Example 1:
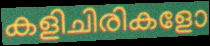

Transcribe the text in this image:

കളിചിരികളോ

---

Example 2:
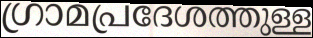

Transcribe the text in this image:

ഗ്രാമപ്രദേശത്തുള്ള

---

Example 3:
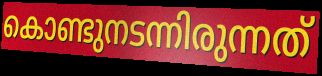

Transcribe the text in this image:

കൊണ്ടുനടന്നിരുന്നത്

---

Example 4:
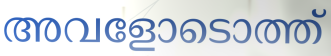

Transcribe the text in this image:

അവളോടൊത്ത്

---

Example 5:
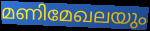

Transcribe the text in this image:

മണിമേഖലയും